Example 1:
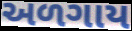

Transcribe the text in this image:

અળગાય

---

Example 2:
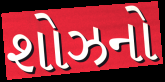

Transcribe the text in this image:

શોઝનો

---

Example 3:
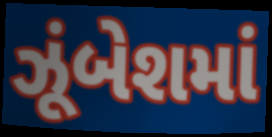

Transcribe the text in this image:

ઝૂંબેશમાં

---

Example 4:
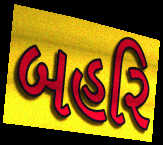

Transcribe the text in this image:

બહરિ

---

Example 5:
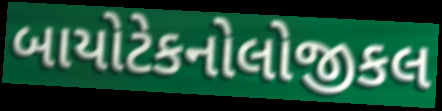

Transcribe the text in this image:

બાયોટેકનોલોજીકલ